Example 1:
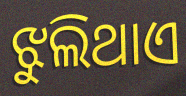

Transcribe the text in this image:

ଝୁଲିଥାଏ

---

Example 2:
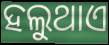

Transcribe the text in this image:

ହଲୁଥାଏ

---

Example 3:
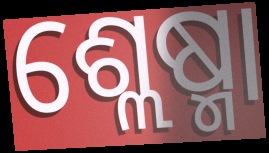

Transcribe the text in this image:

ଶ୍ଲେଷ୍ମା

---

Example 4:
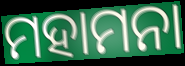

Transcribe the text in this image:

ମହାମନା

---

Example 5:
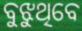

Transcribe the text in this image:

ବୁଝୁଥିବେ